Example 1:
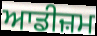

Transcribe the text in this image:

ਆਡੀਜ਼ਮ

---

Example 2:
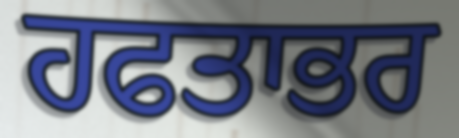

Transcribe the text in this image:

ਹਫਤਾਭਰ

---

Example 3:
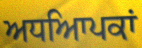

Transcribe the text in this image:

ਅਧਆਿਪਕਾਂ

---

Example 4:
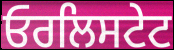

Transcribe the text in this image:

ਓਰਲਿਸਟੇਟ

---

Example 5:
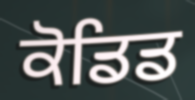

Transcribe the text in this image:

ਕੋਡਿਡ